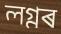
লগ্নৰ